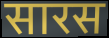
सारस